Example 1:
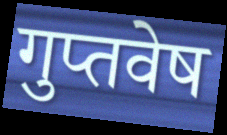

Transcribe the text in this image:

गुप्तवेष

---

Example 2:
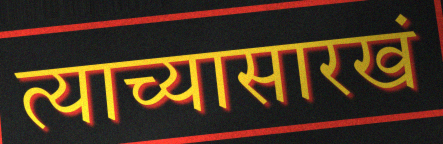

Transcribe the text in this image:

त्याच्यासारखं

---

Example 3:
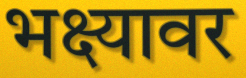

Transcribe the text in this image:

भक्ष्यावर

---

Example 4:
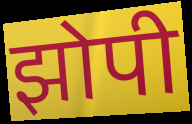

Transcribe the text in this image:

झोपी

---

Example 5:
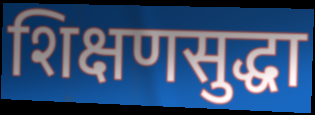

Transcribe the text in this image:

शिक्षणसुद्धा